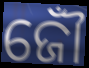
ଜୌଁ